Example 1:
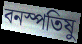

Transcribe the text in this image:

বনস্পতিষু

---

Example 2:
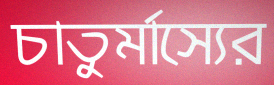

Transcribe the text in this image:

চাতুর্মাস্যের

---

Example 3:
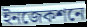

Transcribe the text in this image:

ইনজেকশনে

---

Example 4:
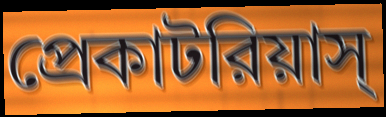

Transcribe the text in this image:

প্রেকাটরিয়াস্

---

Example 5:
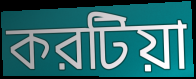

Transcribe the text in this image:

করটিয়া